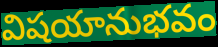
విషయానుభవం